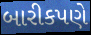
બારીકપણે